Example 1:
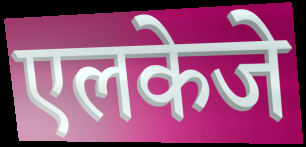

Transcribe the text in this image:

एलकेजे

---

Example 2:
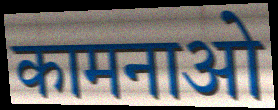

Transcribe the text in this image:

कामनाओ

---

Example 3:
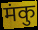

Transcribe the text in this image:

मंकु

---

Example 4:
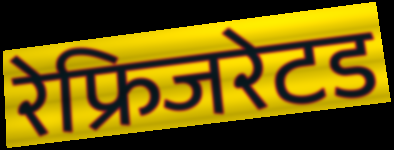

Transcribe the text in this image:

रेफ्रिजरेटड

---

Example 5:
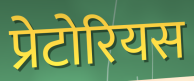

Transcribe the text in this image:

प्रेटोरियस